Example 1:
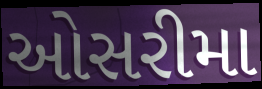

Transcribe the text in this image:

ઓસરીમા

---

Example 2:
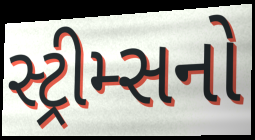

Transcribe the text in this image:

સ્ટ્રીમ્સનો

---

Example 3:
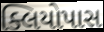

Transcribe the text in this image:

ક્લિયોપાસ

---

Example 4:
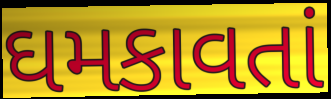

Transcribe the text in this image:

ઘમકાવતાં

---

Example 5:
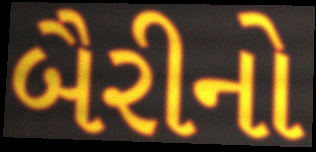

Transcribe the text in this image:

બૈરીનો